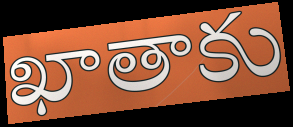
ఖాతాకు